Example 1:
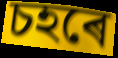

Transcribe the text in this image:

চহৰে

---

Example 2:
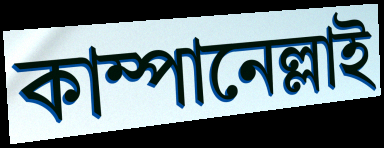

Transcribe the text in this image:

কাম্পানেল্লাই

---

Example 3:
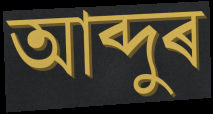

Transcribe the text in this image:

আব্দুৰ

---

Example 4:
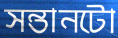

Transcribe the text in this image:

সন্তানটো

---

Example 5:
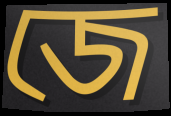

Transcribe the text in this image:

জে